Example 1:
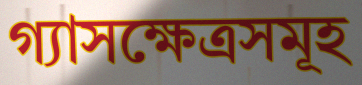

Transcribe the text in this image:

গ্যাসক্ষেত্রসমূহ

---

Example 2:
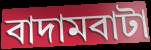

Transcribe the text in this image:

বাদামবাটা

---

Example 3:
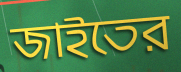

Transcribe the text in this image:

জাইতের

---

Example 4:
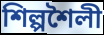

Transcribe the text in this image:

শিল্পশৈলী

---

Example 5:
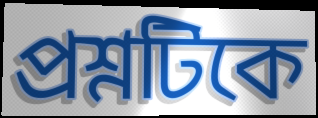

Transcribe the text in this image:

প্রশ্নটিকে